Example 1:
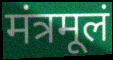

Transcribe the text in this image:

मंत्रमूलं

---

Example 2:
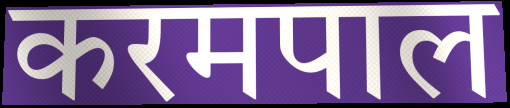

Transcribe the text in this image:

करमपाल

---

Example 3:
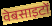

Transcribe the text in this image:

वेबसाइटों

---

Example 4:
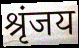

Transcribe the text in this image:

श्रृंजय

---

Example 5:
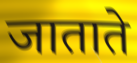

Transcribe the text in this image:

जाताते